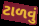
ટાળવું